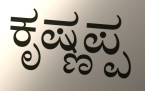
ಕೃಷ್ಣಪ್ಪ